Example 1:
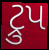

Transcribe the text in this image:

ટ્રુપ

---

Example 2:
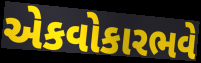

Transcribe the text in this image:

એકવોકારભવે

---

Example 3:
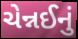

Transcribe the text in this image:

ચેન્નઈનું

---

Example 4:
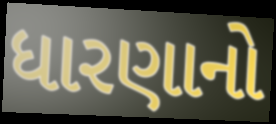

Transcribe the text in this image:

ધારણાનો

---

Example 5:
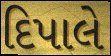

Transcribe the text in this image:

દિપાલે